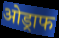
ओड्राफ